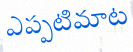
ఎప్పటిమాట